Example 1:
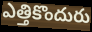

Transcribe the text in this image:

ఎత్తికొందురు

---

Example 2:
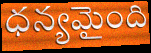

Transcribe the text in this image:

ధన్యమైంది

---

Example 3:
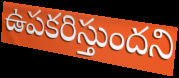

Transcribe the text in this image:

ఉపకరిస్తుందని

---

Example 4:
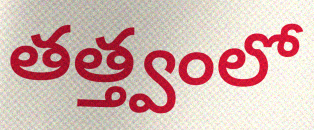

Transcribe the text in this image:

తత్త్వంలో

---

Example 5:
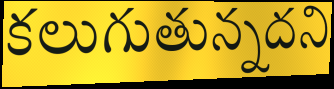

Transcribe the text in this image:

కలుగుతున్నదని